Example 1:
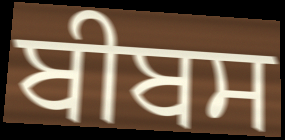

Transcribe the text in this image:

ਬੀਬਸ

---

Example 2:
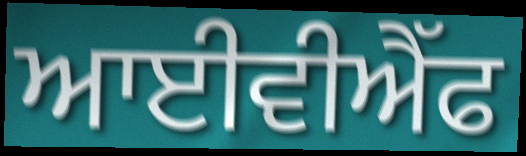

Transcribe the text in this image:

ਆਈਵੀਐੱਫ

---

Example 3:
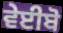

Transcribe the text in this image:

ਵੇਈਬੋ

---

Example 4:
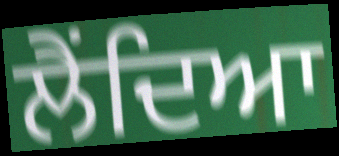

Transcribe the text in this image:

ਲੈਂਦਿਆ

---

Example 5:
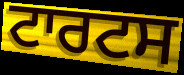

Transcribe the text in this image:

ਟਾਰਟਸ